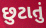
છુટાતું